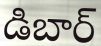
డిబార్